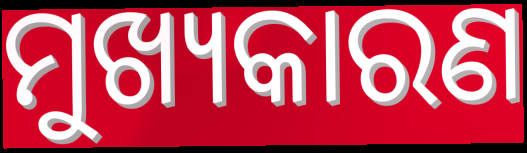
ମୁଖ୍ୟକାରଣ